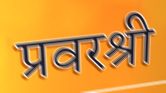
प्रवरश्री